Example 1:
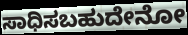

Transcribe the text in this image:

ಸಾಧಿಸಬಹುದೇನೋ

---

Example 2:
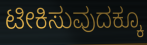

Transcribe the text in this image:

ಟೀಕಿಸುವುದಕ್ಕೂ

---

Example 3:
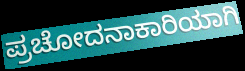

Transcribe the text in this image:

ಪ್ರಚೋದನಾಕಾರಿಯಾಗಿ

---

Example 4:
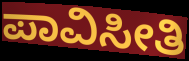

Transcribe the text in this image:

ಪಾವಿಸೀತಿ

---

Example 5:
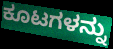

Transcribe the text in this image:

ಕೂಟಗಳನ್ನು